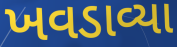
ખવડાવ્યા